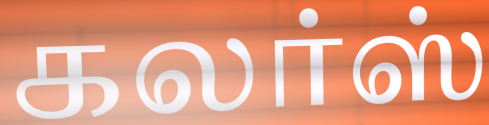
கலர்ஸ்